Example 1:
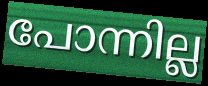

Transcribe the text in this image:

പോന്നില്ല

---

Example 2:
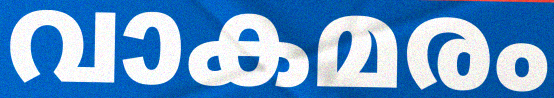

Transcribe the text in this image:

വാകമരം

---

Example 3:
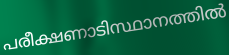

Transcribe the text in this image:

പരീക്ഷണാടിസ്ഥാനത്തിൽ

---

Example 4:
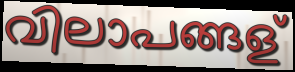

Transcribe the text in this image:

വിലാപങ്ങള്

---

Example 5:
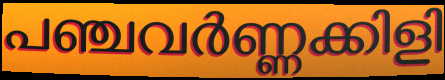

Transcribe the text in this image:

പഞ്ചവർണ്ണക്കിളി